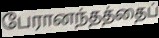
பேரானந்தத்தைப்